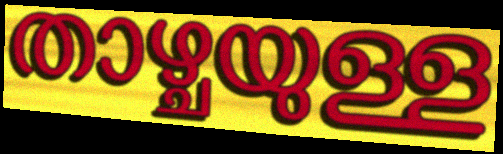
താഴ്ചയുള്ള